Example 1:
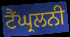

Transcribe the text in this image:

ਟੈਂਘ੍ਰਲਨੀ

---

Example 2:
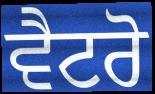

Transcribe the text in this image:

ਵੈਟਰੋ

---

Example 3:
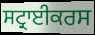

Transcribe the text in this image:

ਸਟ੍ਰਾਈਕਰਸ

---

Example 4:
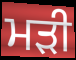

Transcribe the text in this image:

ਮੜੀ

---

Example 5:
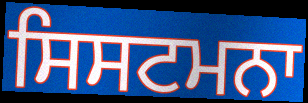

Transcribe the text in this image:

ਸਿਸਟਮਨਾ